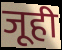
जूही